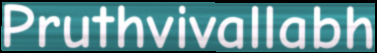
Pruthvivallabh